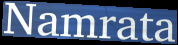
Namrata